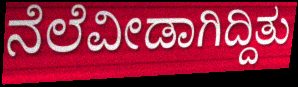
ನೆಲೆವೀಡಾಗಿದ್ದಿತು